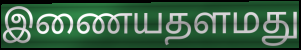
இணையதளமது